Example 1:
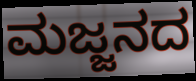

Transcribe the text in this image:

ಮಜ್ಜನದ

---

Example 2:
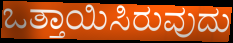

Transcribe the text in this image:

ಒತ್ತಾಯಿಸಿರುವುದು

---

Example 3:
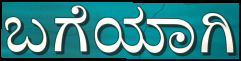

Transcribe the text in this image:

ಬಗೆಯಾಗಿ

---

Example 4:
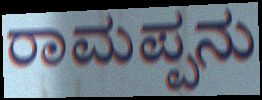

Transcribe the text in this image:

ರಾಮಪ್ಪನು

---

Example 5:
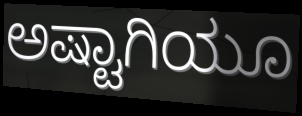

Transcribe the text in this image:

ಅಷ್ಟಾಗಿಯೂ